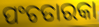
ପଂଚତାରକା